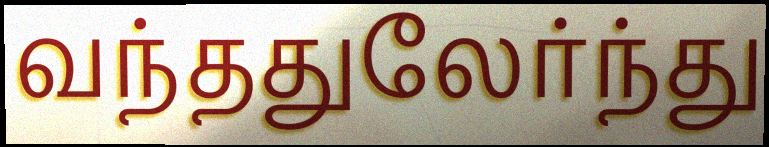
வந்ததுலேர்ந்து